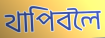
থাপিবলৈ